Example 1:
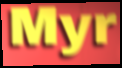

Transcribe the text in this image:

Myr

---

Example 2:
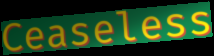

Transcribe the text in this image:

Ceaseless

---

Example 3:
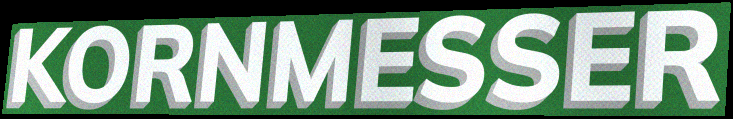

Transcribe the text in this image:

KORNMESSER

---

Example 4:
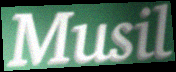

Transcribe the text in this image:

Musil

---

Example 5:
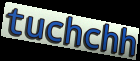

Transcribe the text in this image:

tuchchh